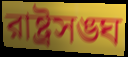
রাষ্ট্রসঙ্ঘ